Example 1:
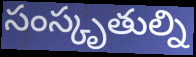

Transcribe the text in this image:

సంస్కృతుల్ని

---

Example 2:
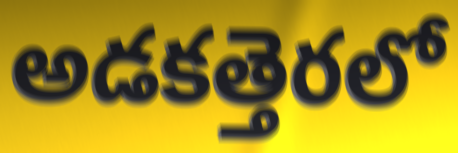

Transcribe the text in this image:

అడకత్తెరలో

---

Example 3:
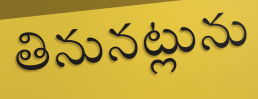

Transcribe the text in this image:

తినునట్లును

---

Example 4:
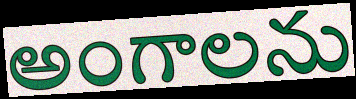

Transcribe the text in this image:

అంగాలను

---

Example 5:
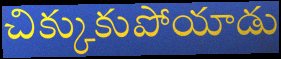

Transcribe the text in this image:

చిక్కుకుపోయాడు